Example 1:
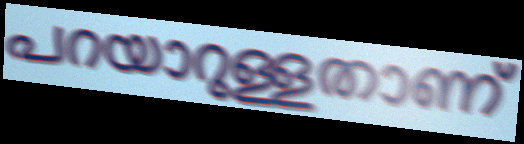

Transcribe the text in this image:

പറയാറുള്ളതാണ്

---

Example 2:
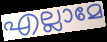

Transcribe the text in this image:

എല്ലാമേ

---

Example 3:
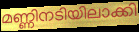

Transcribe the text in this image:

മണ്ണിനടിയിലാക്കി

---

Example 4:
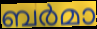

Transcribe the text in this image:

ബർമാ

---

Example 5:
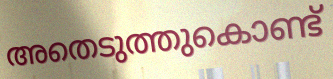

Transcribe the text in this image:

അതെടുത്തുകൊണ്ട്